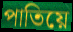
পাতিয়ে